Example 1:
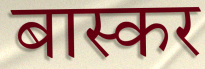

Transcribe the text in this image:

बास्कर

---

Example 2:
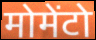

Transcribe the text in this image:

मोमेंटो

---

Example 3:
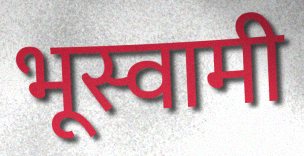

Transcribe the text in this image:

भूस्‍वामी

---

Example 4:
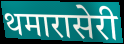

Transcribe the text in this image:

थमारासेरी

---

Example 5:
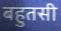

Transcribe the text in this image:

बहुतसी